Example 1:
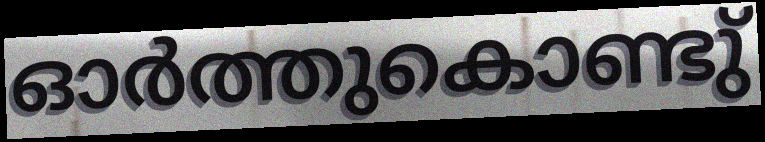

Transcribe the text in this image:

ഓർത്തുകൊണ്ടു്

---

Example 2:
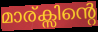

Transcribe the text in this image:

മാര്ക്സിന്റെ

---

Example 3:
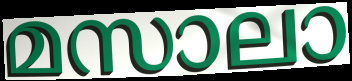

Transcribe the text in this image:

മസാലാ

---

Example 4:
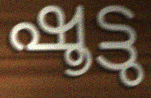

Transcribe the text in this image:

ഷൂട്ടു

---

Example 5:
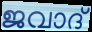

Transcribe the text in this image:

ജവാദ്